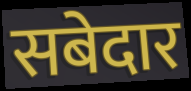
सबेदार